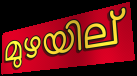
മുഴയില്